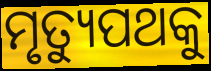
ମୃତ୍ୟୁପଥକୁ